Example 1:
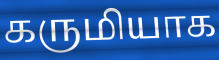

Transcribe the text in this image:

கருமியாக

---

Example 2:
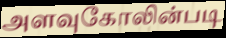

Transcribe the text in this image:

அளவுகோலின்படி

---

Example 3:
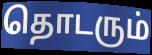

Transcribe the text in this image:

தொடரும்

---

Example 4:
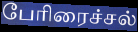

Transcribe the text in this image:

பேரிரைச்சல்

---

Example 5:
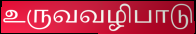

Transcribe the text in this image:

உருவவழிபாடு